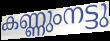
കണ്ണുംനട്ടു